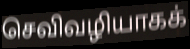
செவிவழியாகக்